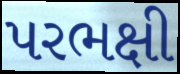
પરભક્ષી